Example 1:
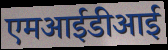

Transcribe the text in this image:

एमआईडीआई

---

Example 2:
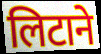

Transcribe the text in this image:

लिटाने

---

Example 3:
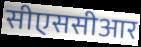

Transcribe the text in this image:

सीएससीआर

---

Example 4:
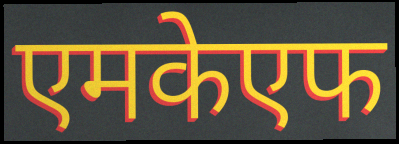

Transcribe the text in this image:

एमकेएफ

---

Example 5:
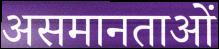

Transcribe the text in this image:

असमानताओं